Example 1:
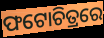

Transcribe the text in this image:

ଫଟୋଚିତ୍ରରେ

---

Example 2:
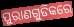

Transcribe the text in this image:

ପୁରାଣଗୁଡିକରେ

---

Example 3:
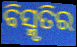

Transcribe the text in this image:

ବିସ୍ମୃତିର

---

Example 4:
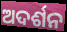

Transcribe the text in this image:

ଅଦର୍ଶନ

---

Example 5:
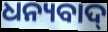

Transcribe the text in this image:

ଧନ୍ୟବାଦ୍